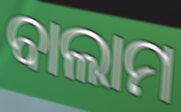
ବାଲାମ